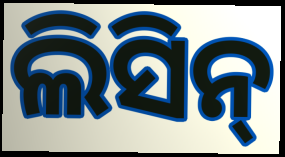
ଲିସିନ୍